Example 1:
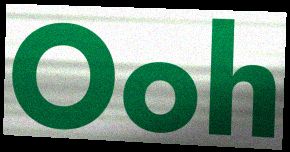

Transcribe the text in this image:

Ooh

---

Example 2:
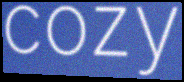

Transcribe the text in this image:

cozy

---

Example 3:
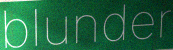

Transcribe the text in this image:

blunder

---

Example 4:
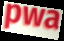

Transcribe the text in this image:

pwa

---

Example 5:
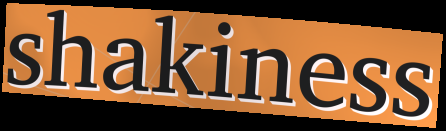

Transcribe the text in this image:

shakiness